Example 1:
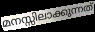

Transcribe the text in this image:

മനസ്സിലാക്കുന്നത്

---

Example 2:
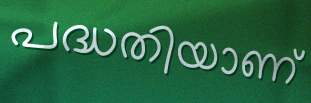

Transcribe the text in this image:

പദ്ധതിയാണ്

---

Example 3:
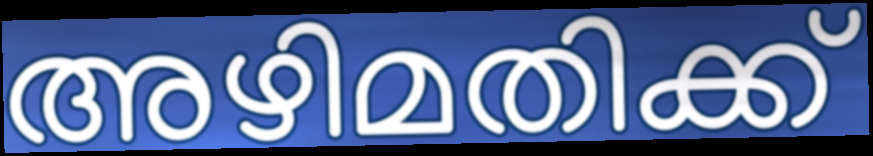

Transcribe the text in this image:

അഴിമതിക്ക്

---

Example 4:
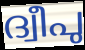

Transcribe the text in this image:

ദ്വീപു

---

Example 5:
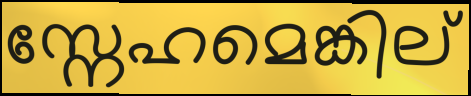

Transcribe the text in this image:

സ്നേഹമെങ്കില്